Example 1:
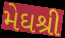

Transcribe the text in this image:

મેઘશ્રી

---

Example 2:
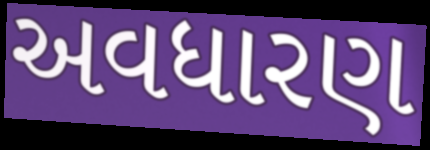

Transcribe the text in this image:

અવધારણ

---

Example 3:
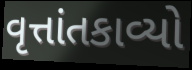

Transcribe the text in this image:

વૃત્તાંતકાવ્યો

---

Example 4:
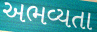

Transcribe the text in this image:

અભવ્યતા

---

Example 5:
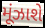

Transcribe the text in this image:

મૂંઝાશે